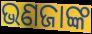
ଭଣଜାଙ୍କ